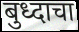
बुध्दाचा